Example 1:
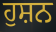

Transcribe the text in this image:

ਹੁਸ਼ਨ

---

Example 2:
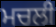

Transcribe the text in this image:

ਮਚਲੀ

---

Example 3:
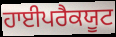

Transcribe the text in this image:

ਹਾਈਪਰੈਕਯੂਟ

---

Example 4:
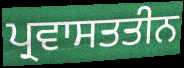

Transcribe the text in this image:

ਪ੍ਰਵਾਸਤਤੀਨ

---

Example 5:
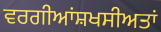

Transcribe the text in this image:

ਵਰਗੀਆਂਸ਼ਖਸੀਅਤਾਂ